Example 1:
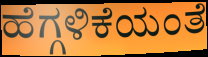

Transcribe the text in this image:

ಹೆಗ್ಗಳಿಕೆಯಂತೆ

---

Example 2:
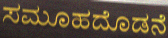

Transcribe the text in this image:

ಸಮೂಹದೊಡನೆ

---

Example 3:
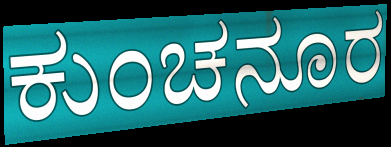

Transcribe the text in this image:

ಕುಂಚನೂರ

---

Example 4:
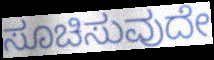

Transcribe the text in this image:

ಸೂಚಿಸುವುದೇ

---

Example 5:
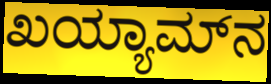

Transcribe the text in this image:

ಖಯ್ಯಾಮ್‌ನ